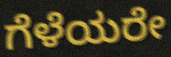
ಗೆಳೆಯರೇ